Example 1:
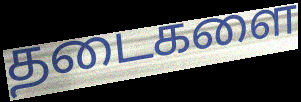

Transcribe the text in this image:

தடைகளை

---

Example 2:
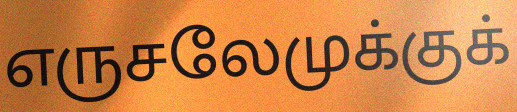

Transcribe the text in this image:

எருசலேமுக்குக்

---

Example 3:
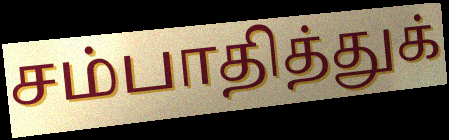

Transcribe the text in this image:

சம்பாதித்துக்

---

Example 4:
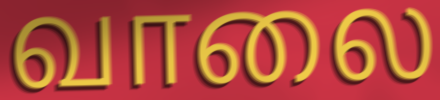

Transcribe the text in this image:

வாலை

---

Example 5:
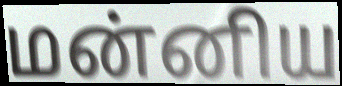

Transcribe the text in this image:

மன்னிய